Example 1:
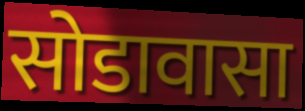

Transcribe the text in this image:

सोडावासा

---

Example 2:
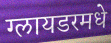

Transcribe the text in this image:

ग्लायडरमधे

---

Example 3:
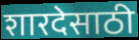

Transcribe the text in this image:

शारदेसाठी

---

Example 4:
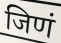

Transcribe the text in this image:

जिणं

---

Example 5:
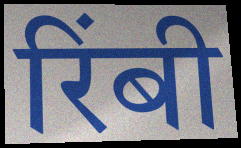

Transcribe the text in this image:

रिंबी